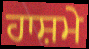
ਹਾਸ਼ਮੇ